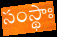
సంస్థాః